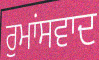
ਰੁਮਾਂਸਵਾਦ